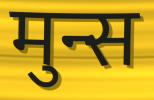
मुन्स